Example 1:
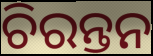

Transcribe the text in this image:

ଚିରନ୍ତନ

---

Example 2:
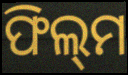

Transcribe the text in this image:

ଫିଲ୍‌ମ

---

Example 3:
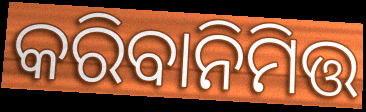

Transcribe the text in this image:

କରିବାନିମିତ୍ତ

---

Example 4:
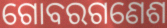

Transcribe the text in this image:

ଗୋବରଗଣେଶ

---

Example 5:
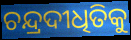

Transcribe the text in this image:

ଚନ୍ଦ୍ରଦୀଧିତିକୁ